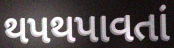
થપથપાવતાં